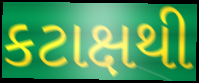
કટાક્ષથી